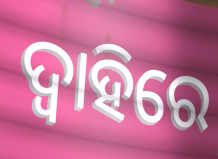
ଦ୍ୱାହିରେ